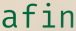
afin